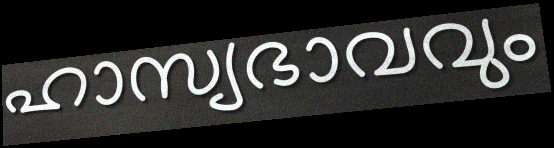
ഹാസ്യഭാവവും